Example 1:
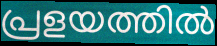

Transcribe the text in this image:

പ്രളയത്തിൽ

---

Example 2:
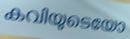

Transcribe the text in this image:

കവിയുടെയോ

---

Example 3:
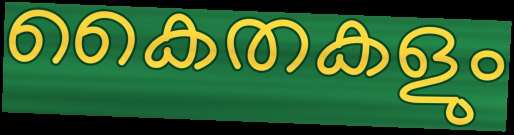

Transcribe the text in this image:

കൈതകളും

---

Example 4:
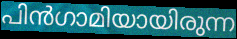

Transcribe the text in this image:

പിൻഗാമിയായിരുന്ന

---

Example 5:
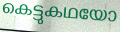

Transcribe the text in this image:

കെട്ടുകഥയോ